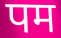
पम